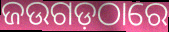
ଜଉଗଡ଼ଠାରେ